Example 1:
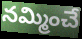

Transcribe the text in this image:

నమ్మించే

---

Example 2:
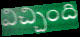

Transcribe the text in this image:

విచ్చింది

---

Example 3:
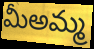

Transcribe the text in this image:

మీఅమ్మ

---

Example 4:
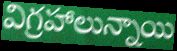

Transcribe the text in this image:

విగ్రహాలున్నాయి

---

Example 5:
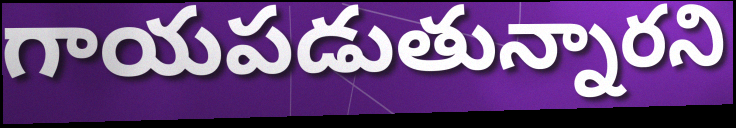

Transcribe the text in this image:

గాయపడుతున్నారని